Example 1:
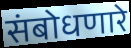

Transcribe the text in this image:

संबोधणारे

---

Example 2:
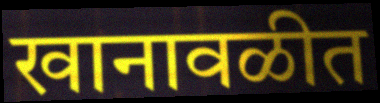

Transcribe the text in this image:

खानावळीत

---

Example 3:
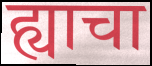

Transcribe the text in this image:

ह्याचा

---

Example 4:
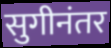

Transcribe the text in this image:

सुगीनंतर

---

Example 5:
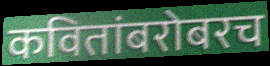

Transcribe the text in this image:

कवितांबरोबरच